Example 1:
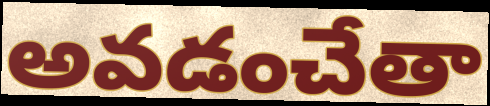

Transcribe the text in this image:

అవడంచేతా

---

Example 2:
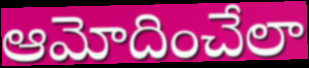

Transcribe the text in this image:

ఆమోదించేలా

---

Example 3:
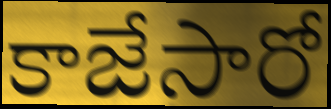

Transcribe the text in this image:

కాజేసారో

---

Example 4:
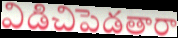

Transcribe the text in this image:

విడిచిపెడతారా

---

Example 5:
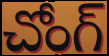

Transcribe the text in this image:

చోంగ్